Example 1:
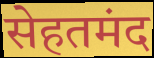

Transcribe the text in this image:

सेहतमंद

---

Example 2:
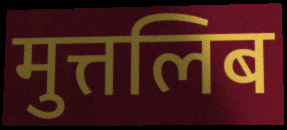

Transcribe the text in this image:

मुत्तलिब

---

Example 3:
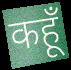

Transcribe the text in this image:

कहूँ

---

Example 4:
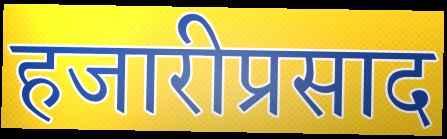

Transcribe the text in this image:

हजारीप्रसाद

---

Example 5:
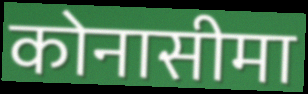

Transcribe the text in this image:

कोनासीमा